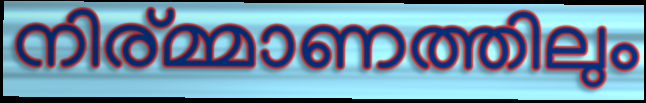
നിര്മ്മാണത്തിലും